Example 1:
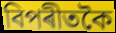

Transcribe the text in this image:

বিপৰীতকৈ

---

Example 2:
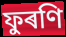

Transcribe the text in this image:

ফুৰণি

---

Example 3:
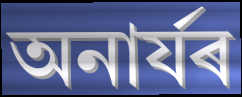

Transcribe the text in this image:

অনাৰ্যৰ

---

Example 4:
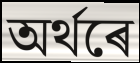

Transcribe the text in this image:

অৰ্থৰে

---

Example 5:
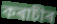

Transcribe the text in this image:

কৰাচীৰ